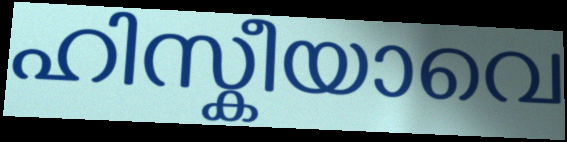
ഹിസ്കീയാവെ